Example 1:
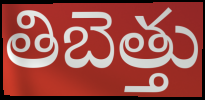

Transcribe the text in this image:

తిబెత్తు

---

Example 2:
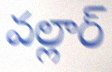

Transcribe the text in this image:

వల్లార్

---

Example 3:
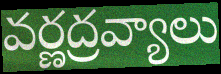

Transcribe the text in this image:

వర్ణద్రవ్యాలు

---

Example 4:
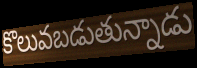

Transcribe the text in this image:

కొలువబడుతున్నాడు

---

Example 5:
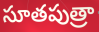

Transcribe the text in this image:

సూతపుత్రా